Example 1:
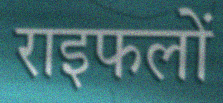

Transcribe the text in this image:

राइफलों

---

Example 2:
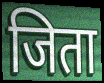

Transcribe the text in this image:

जिता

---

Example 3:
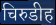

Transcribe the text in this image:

चिरुडीह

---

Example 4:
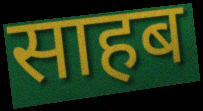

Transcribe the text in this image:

साहब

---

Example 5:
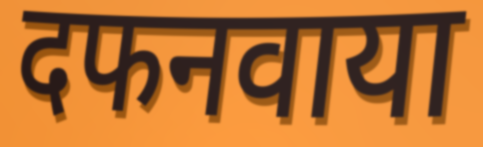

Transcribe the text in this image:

दफनवाया